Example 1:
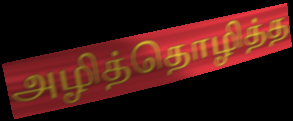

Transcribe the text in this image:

அழித்தொழித்த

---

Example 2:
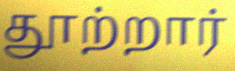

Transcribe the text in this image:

தூற்றார்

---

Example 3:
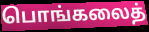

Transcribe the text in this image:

பொங்கலைத்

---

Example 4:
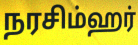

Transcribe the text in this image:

நரசிம்ஹர்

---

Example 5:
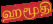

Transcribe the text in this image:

ஹமூதி